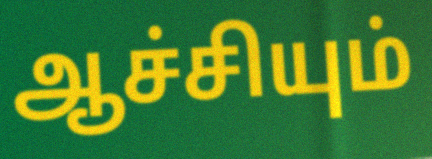
ஆச்சியும்